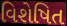
વિશેષિત